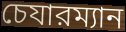
চেযারম্যান